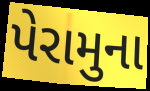
પેરામુના